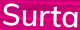
Surta